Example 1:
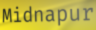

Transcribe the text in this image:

Midnapur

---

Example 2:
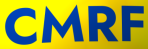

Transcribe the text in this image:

CMRF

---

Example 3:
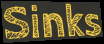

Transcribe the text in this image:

Sinks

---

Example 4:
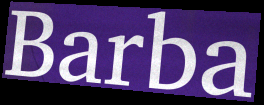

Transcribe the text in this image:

Barba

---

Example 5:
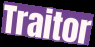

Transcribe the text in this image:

Traitor